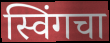
स्विंगचा